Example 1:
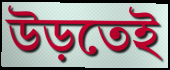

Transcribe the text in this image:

উড়তেই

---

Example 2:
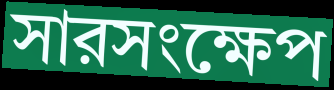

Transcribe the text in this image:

সারসংক্ষেপ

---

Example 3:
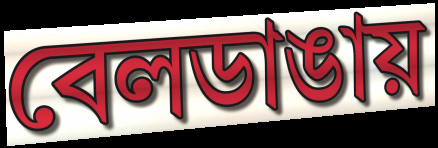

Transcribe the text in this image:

বেলডাঙায়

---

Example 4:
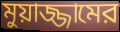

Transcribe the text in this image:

মুয়াজ্জামের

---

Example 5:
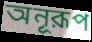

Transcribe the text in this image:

অনূরূপ